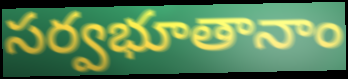
సర్వభూతానాం